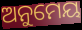
ଅନୁମେୟ